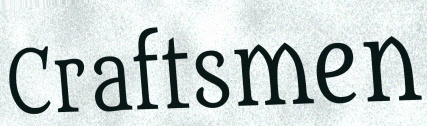
Craftsmen